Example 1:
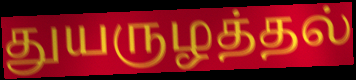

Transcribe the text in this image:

துயருழத்தல்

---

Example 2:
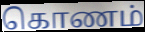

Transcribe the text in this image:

கொணம்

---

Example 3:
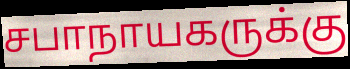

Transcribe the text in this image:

சபாநாயகருக்கு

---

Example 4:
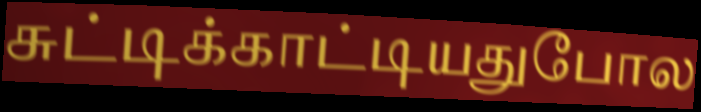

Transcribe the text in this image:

சுட்டிக்காட்டியதுபோல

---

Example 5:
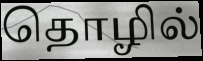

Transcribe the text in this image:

தொழில்